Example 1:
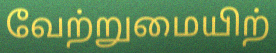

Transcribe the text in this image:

வேற்றுமையிற்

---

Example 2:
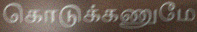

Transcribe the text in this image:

கொடுக்கணுமே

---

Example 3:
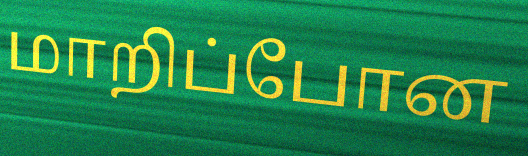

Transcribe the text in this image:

மாறிப்போன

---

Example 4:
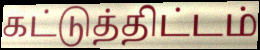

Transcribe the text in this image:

கட்டுத்திட்டம்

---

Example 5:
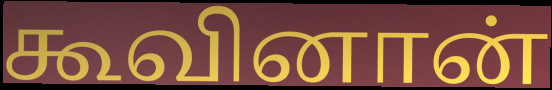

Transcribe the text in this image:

கூவினான்